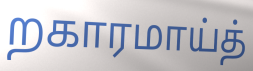
றகாரமாய்த்